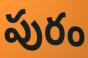
పురం